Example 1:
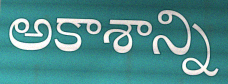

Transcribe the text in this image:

అకాశాన్ని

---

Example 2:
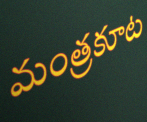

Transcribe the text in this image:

మంత్రకూట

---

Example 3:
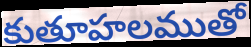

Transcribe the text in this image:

కుతూహలముతో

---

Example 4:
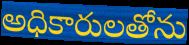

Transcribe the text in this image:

అధికారులతోను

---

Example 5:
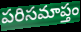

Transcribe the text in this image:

పరిసమాప్తం